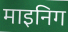
माइनिग